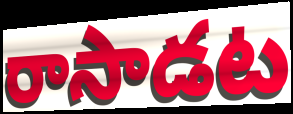
రాసాడట